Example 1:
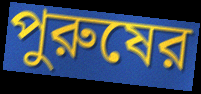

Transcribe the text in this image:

পুরুষের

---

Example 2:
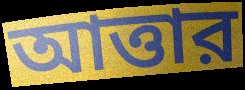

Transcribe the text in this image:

আত্তার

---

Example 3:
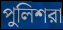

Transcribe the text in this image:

পুলিশরা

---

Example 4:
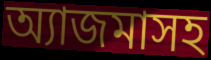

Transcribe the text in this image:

অ্যাজমাসহ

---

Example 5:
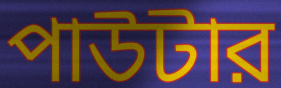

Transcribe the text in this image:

পাউটার